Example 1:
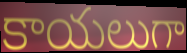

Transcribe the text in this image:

కాయలుగా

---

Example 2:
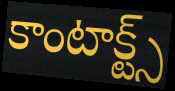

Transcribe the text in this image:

కాంటాక్ట్స్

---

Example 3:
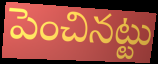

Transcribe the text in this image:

పెంచినట్టు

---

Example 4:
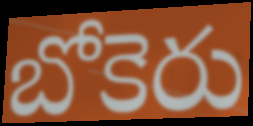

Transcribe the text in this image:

బోకెరు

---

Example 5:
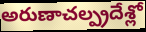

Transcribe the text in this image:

అరుణాచల్ప్రదేశ్లో